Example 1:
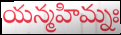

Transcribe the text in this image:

యన్మహిమ్నః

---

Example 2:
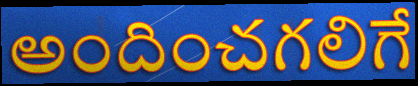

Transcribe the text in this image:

అందించగలిగే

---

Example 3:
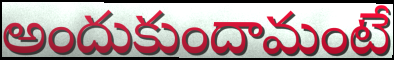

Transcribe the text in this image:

అందుకుందామంటే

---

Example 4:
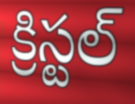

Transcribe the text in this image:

క్రిస్టల్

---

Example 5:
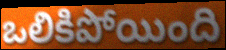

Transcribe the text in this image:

ఒలికిపోయింది